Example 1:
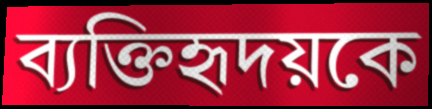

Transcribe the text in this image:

ব্যক্তিহৃদয়কে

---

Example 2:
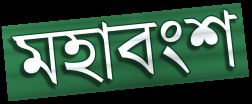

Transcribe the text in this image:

মহাবংশ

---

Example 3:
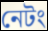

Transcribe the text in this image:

নেটং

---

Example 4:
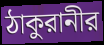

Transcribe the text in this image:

ঠাকুরানীর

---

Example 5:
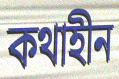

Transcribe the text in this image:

কথাহীন